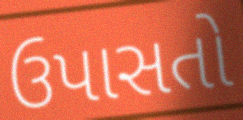
ઉપાસતો